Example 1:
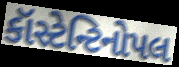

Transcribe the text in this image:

કૉસ્ટેન્ટિનોપલ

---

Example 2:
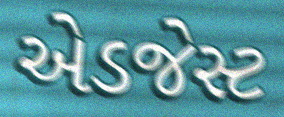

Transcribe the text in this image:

એડજેસ્ટ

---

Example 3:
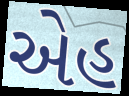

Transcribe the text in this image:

એહ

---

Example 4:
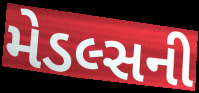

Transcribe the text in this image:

મેડલ્સની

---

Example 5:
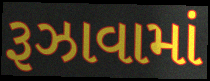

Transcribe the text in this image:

રૂઝાવામાં